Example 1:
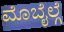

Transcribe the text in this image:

ಮೊಬೈಲ್ಗೆ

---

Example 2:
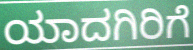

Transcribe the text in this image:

ಯಾದಗಿರಿಗೆ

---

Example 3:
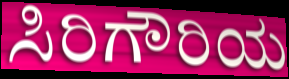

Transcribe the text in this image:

ಸಿರಿಗೌರಿಯ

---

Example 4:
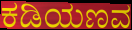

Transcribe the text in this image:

ಕಡಿಯಣವ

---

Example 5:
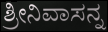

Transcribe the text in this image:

ಶ್ರೀನಿವಾಸನ್ನ